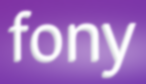
fony